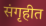
संगृहीत